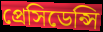
প্রেসিডেন্সি